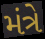
મંત્રે